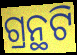
ଗ୍ରନ୍ଥଟି